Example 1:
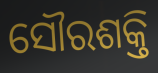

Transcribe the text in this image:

ସୌରଶକ୍ତି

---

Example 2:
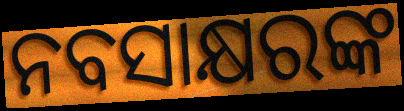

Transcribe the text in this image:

ନବସାକ୍ଷରଙ୍କ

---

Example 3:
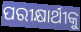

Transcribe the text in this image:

ପରୀକ୍ଷାର୍ଥୀକୁ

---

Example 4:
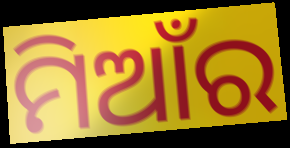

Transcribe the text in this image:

ମିଆଁର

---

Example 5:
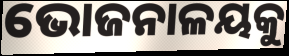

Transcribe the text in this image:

ଭୋଜନାଳୟକୁ